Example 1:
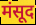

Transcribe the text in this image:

मंसूद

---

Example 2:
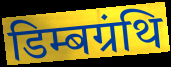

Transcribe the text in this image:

डिम्बग्रंथि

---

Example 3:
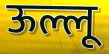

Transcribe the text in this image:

ऊल्लू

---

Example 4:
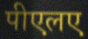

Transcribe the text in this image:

पीएलए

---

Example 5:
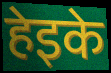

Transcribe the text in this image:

हेइके